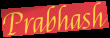
Prabhash